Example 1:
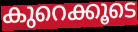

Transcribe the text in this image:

കുറെക്കൂടെ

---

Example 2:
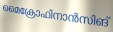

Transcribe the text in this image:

മൈക്രോഫിനാൻസിങ്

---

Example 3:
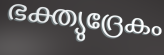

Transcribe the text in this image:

ഭക്ത്യുദ്രേകം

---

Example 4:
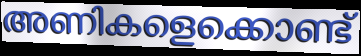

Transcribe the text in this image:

അണികളെക്കൊണ്ട്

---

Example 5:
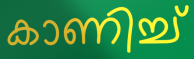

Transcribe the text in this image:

കാണിച്ച്